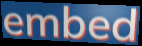
embed